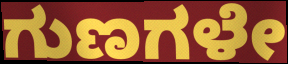
ಗುಣಗಳೇ